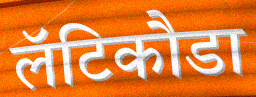
लॅटिकौडा